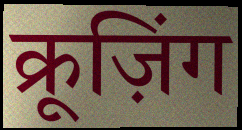
क्रूज़िंग